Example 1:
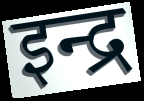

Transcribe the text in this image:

इन्द्र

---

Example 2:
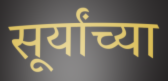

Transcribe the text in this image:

सूर्यांच्या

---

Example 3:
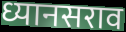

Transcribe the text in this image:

ध्यानसराव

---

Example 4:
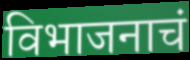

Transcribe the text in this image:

विभाजनाचं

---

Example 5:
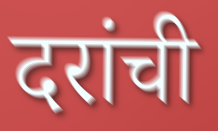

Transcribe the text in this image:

दरांची